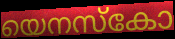
യെനസ്കോ